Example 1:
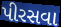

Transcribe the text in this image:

પીરસવા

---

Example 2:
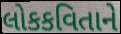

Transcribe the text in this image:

લોકકવિતાને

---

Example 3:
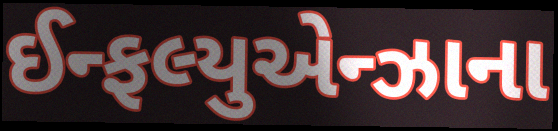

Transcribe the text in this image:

ઈન્ફલ્યુએન્ઝાના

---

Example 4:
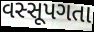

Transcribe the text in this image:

વસ્સૂપગતા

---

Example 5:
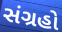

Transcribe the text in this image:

સંગ્રહો